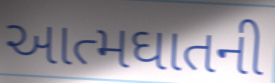
આત્મઘાતની